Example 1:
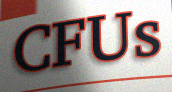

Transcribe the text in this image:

CFUs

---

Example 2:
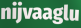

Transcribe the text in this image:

nijvaaglu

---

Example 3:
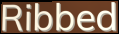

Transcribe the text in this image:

Ribbed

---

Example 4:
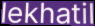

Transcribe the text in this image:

lekhatil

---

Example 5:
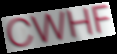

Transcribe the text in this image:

CWHF